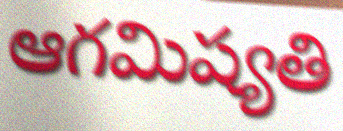
ఆగమిష్యతి